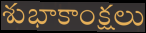
శుభాకాంక్షలు